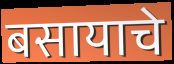
बसायाचे